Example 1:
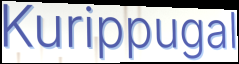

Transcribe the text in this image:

Kurippugal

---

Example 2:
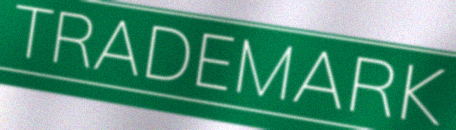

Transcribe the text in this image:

TRADEMARK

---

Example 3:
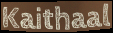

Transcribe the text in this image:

Kaithaal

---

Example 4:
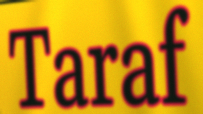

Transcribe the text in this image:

Taraf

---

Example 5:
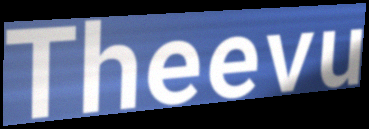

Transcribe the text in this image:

Theevu